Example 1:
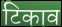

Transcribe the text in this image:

टिकाव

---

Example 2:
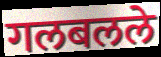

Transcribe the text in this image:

गलबलले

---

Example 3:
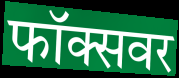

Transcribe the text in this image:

फॉक्सवर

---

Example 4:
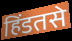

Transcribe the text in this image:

हिंडतसे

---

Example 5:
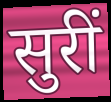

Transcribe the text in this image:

सुरीं